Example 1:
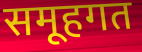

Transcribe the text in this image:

समूहगत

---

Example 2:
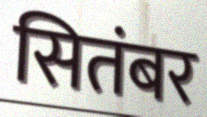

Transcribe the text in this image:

सितंबर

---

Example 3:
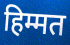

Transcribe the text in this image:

हिम्मत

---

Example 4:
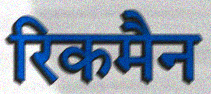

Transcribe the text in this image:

रिकमैन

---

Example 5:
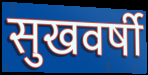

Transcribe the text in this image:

सुखवर्षी